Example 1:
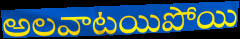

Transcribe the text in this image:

అలవాటయిపోయి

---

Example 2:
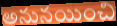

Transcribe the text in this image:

అనునయించి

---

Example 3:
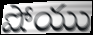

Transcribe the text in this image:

షోయు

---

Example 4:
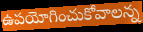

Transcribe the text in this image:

ఉపయోగించుకోవాలన్న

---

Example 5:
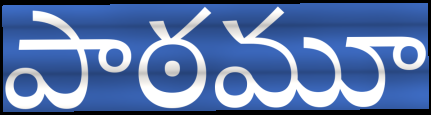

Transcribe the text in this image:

పాఠమూ